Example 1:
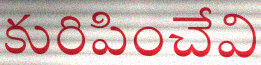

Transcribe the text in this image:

కురిపించేవి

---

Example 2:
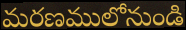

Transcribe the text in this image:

మరణములోనుండి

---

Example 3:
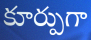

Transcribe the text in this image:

కూర్పుగా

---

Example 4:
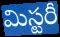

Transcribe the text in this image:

మిస్టరీ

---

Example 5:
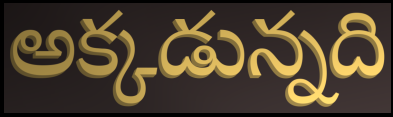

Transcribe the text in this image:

అక్కడున్నది